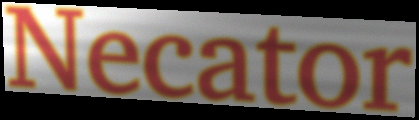
Necator